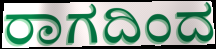
ರಾಗದಿಂದ